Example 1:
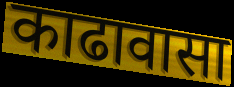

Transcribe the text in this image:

काढावासा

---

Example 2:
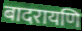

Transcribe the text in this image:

बादरायणि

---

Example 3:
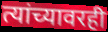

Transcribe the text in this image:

त्यांच्यावरही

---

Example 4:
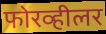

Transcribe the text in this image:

फोरव्हीलर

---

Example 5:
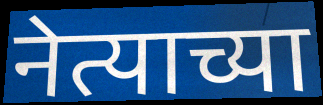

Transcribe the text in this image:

नेत्याच्या